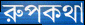
রুপকথা